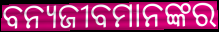
ବନ୍ୟଜୀବମାନଙ୍କର